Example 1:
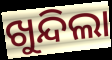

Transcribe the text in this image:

ଖୁନ୍ଦିଲା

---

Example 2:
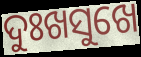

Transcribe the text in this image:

ଦୁଃଖସୁଖେ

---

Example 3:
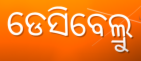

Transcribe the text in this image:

ଡେସିବେଲ୍ରୁ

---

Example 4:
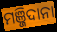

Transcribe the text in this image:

ମଞ୍ଜିଦାନା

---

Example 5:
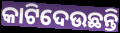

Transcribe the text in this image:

କାଟିଦେଉଛନ୍ତି